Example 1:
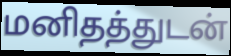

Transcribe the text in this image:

மனிதத்துடன்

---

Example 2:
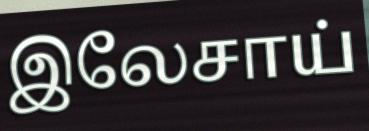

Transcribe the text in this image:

இலேசாய்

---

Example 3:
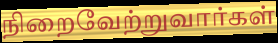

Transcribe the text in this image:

நிறைவேற்றுவார்கள்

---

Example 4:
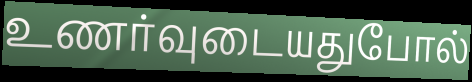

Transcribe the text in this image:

உணர்வுடையதுபோல்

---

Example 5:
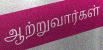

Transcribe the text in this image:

ஆற்றுவார்கள்